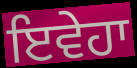
ਇਵੇਹਾ